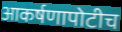
आकर्षणापोटीच